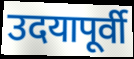
उदयापूर्वी